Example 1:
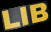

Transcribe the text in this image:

LIB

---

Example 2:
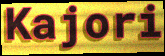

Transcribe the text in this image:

Kajori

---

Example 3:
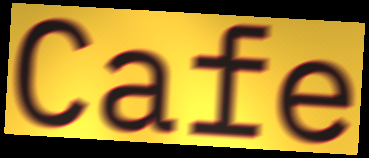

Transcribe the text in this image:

Cafe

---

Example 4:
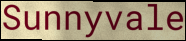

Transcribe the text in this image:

Sunnyvale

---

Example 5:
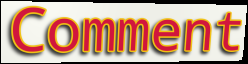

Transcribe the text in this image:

Comment